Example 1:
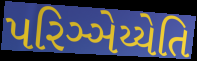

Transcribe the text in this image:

પરિઞ્ઞેય્યેતિ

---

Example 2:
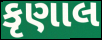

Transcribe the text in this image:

કૃણાલ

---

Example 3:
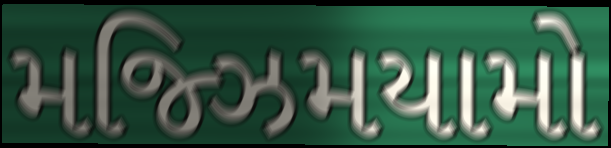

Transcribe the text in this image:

મજ્ઝિમયામો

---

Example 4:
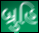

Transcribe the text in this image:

બ્રુહિ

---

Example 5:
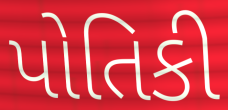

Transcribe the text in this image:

પોતિકી